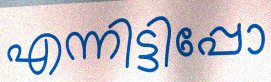
എന്നിട്ടിപ്പോ